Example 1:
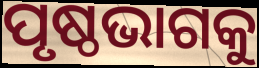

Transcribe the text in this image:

ପୃଷ୍ଠଭାଗକୁ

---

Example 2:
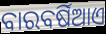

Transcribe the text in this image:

ବାରବର୍ଷିଆଏ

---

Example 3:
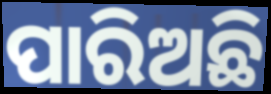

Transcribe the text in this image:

ପାରିଅଛି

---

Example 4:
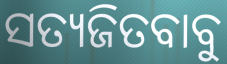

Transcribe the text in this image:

ସତ୍ୟଜିତବାବୁ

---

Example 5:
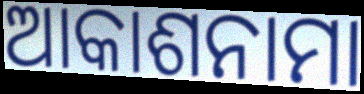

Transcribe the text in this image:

ଆକାଶନାମା